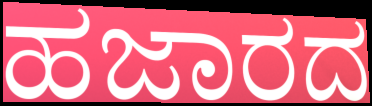
ಹಜಾರದ